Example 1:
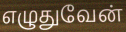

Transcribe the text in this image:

எழுதுவேன்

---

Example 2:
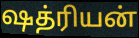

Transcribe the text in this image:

ஷத்ரியன்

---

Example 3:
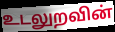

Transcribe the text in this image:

உடலுறவின்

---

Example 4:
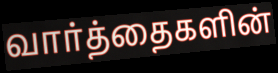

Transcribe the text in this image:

வார்த்தைகளின்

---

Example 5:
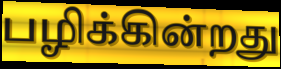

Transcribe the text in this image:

பழிக்கின்றது